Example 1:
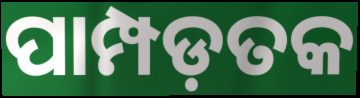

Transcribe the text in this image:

ପାମ୍ପଡ଼ତକ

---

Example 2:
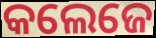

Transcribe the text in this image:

କଲେଜେ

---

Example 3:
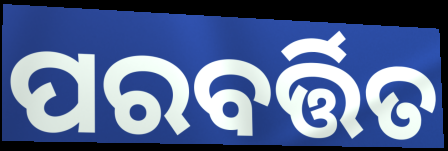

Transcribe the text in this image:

ପରବର୍ତ୍ତିତ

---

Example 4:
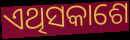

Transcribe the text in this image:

ଏଥିସକାଶେ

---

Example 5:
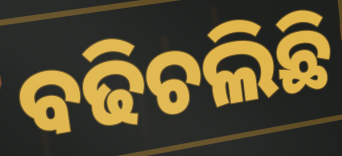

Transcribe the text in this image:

ବଢିଚଲିଛି